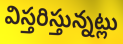
విస్తరిస్తున్నట్లు